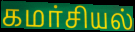
கமர்சியல்